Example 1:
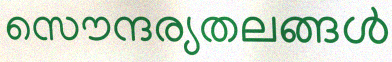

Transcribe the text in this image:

സൌന്ദര്യതലങ്ങൾ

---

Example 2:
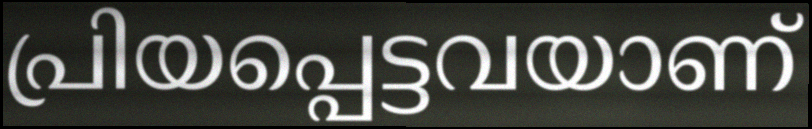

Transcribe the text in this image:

പ്രിയപ്പെട്ടവയാണ്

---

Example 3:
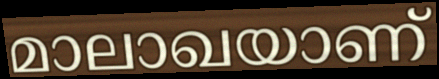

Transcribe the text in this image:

മാലാഖയാണ്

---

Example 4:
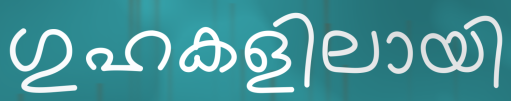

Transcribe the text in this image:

ഗുഹകളിലായി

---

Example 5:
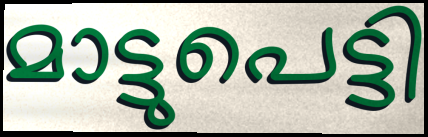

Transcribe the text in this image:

മാട്ടുപെട്ടി